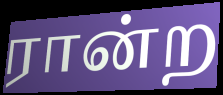
ரான்ற